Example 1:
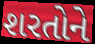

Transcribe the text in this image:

શરતોને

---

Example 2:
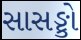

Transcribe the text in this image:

સાસઙ્કો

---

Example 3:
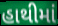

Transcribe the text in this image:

હાથીમાં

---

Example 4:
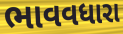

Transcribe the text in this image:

ભાવવધારા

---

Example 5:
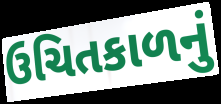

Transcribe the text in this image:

ઉચિતકાળનું